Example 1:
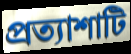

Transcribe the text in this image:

প্রত্যাশাটি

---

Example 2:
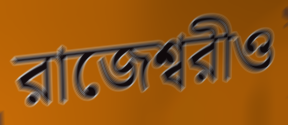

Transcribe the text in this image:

রাজেশ্বরীও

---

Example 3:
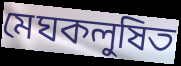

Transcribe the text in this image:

মেঘকলুষিত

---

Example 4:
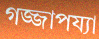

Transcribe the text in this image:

গজ্জাপয্যা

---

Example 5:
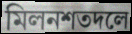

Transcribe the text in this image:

মিলনশতদলে